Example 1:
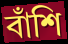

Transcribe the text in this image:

বাঁশি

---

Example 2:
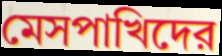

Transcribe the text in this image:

মেসপাখিদের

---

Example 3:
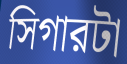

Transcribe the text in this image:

সিগারটা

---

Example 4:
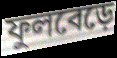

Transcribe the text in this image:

ফুলবেড়ে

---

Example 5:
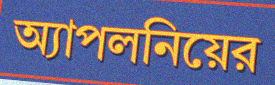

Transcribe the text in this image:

অ্যাপলনিয়ের